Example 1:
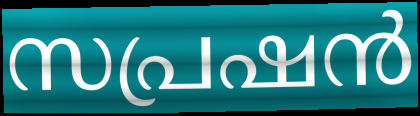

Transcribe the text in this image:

സപ്രഷൻ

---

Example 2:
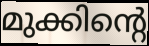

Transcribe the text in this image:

മുക്കിന്റെ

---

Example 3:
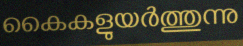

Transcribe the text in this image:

കൈകളുയർത്തുന്നു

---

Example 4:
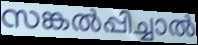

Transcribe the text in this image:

സങ്കൽപ്പിച്ചാൽ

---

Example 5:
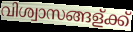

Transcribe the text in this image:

വിശ്വാസങ്ങള്ക്ക്